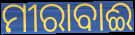
ମୀରାବାଈ